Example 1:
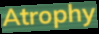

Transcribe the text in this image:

Atrophy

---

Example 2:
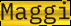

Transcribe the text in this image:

Maggi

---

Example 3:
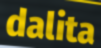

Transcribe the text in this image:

dalita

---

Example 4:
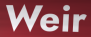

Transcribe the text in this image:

Weir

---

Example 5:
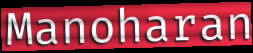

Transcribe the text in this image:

Manoharan